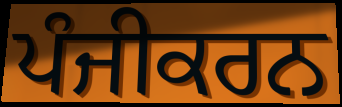
ਪੰਜੀਕਰਨ